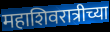
महाशिवरात्रीच्या